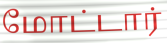
மோட்டார்